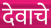
देवाचे